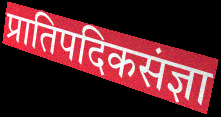
प्रातिपदिकसंज्ञा